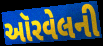
ઑરવેલની